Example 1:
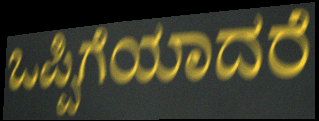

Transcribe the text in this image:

ಒಪ್ಪಿಗೆಯಾದರೆ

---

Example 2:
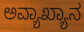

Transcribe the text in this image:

ಅವ್ಯಾಖ್ಯಾನ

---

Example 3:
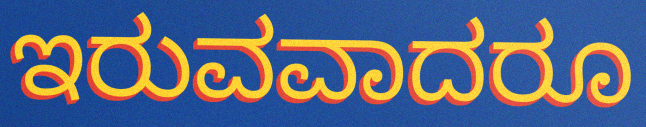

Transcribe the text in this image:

ಇರುವವಾದರೂ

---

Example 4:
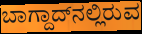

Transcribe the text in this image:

ಬಾಗ್ದಾದ್‌ನಲ್ಲಿರುವ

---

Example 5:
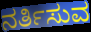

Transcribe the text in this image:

ನರ್ತಿಸುವ